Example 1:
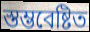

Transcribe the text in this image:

স্তম্ভবেষ্টিত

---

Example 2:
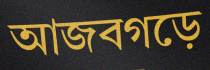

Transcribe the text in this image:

আজবগড়ে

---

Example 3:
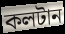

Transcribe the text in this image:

কলটান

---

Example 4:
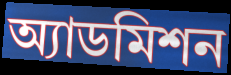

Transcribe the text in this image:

অ্যাডমিশন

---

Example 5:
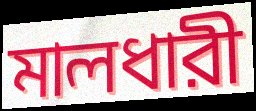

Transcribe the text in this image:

মালধারী